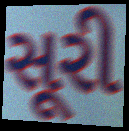
સૂરી